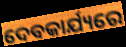
ଦେବକାର୍ଯ୍ୟରେ